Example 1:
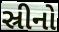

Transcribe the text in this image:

સ્રીનો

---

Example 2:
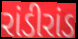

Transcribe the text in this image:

રાંડીરાંડ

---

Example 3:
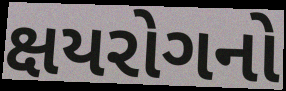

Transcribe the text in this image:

ક્ષયરોગનો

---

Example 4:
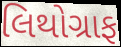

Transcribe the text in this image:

લિથોગ્રાફ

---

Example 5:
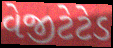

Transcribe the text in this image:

વેજીટેટેડ